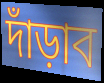
দাঁড়াব